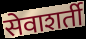
सेवाशर्ती